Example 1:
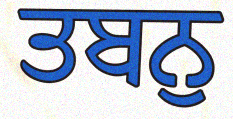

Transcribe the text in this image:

ਤਬਨੁ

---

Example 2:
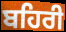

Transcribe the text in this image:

ਬਹਿਰੀ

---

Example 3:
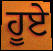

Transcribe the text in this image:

ਹੂਏ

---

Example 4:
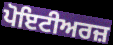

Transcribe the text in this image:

ਪੋਇਟੀਅਰਜ਼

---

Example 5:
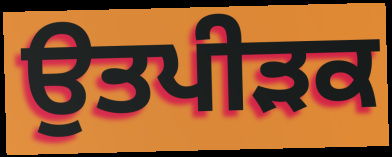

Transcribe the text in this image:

ਉਤਪੀੜਕ